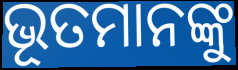
ଭୂତମାନଙ୍କୁ